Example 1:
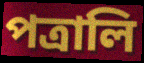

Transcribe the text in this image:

পত্রালি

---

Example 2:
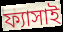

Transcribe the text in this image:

ফ্যাসাই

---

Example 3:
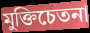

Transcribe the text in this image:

মুক্তিচেতনা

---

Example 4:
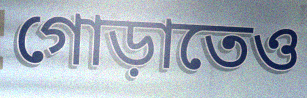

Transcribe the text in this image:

গোড়াতেও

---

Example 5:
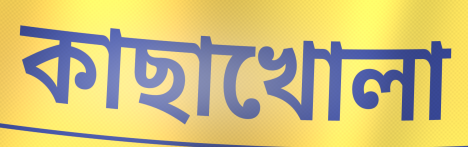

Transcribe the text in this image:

কাছাখোলা